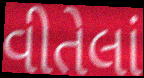
વીતેલાં